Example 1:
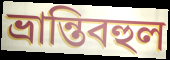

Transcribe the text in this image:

ভ্রান্তিবহুল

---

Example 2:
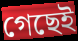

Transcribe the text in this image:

গেছেই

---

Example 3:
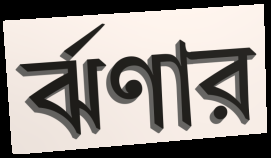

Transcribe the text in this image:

র্ঝণার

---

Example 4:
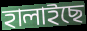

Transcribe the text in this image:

হালাইছে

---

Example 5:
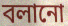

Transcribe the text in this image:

বলানো